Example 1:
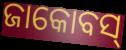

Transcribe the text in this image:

ଜାକୋବସ୍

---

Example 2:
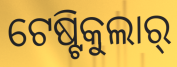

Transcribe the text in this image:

ଟେଷ୍ଟିକୁଲାର୍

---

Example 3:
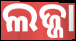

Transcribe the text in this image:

ଲଜ୍ଜା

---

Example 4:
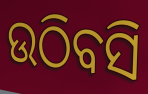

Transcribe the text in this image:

ଉଠିବସି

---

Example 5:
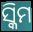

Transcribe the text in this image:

ସ୍କିମ